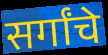
सर्गांचे